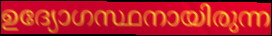
ഉദ്യോഗസ്ഥനായിരുന്ന